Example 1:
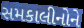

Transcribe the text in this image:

સમકાલીનોને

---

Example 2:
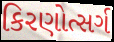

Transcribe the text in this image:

કિરણોત્સર્ગ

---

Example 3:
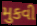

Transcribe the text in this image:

મુકવી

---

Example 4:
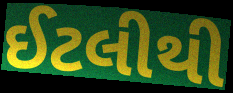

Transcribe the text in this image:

ઈટલીથી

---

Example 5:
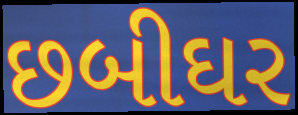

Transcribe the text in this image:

છબીઘર